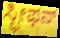
ಸ್ಟೀಫನ್